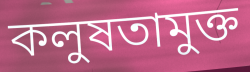
কলুষতামুক্ত